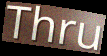
Thru